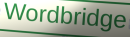
Wordbridge